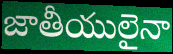
జాతీయులైనా